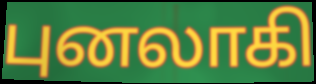
புனலாகி